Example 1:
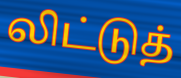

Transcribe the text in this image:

லிட்டுத்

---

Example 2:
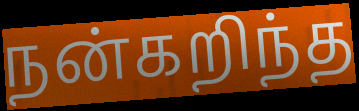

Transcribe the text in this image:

நன்கறிந்த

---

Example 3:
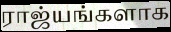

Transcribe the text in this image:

ராஜ்யங்களாக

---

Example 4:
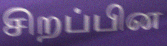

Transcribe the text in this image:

சிறப்பின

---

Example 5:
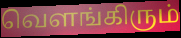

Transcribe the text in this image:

வெளங்கிரும்